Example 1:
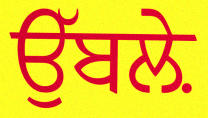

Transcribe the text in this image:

ਉੱਬਲ਼ੇ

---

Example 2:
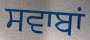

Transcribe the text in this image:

ਸਵਾਬਾਂ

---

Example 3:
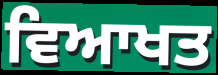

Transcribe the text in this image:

ਵਿਆਖਤ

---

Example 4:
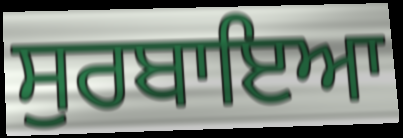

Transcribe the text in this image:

ਸੁਰਬਾਇਆ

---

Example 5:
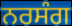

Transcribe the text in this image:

ਨਰਸੰਗ